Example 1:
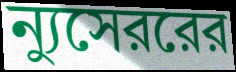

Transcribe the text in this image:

ন্যুসেররের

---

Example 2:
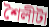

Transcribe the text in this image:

শৈলীটা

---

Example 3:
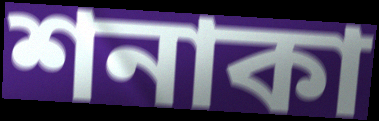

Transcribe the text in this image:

শনাকা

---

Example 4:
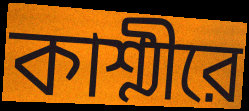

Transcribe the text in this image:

কাশ্মীরে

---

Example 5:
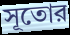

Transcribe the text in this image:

সূতোর